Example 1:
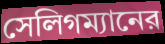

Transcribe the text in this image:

সেলিগম্যানের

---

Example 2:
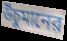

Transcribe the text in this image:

উঁচুমানের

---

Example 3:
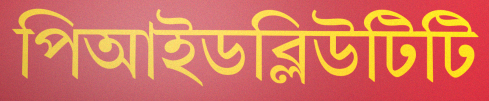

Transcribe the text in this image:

পিআইডব্লিউটিটি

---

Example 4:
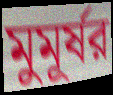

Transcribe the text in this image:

মুমূর্ষর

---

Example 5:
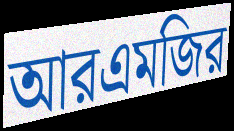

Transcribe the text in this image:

আরএমজির